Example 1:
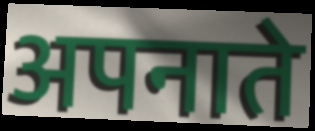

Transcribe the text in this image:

अपनाते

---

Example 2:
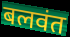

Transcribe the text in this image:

बलवंत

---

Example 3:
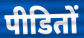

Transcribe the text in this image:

पीडितों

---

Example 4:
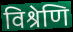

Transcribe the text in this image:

विश्रेणि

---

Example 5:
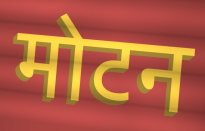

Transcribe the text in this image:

मोटन